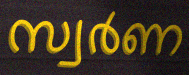
സ്വർണ